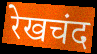
रेखचंद